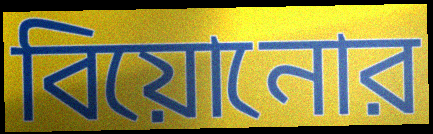
বিয়োনোর